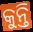
କୁନ୍ତି